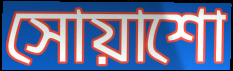
সোয়াশো